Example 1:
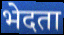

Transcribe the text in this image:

भेदता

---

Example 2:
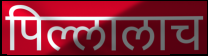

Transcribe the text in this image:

पिल्लालाच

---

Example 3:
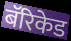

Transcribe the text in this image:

बॅरिकेड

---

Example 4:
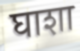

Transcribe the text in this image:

घाशा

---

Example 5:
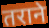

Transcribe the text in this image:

तराने